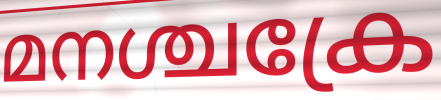
മനശ്ചക്രേ